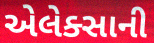
એલેક્સાની